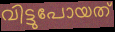
വിട്ടുപോയത്